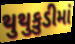
થુથુકુડીમાં